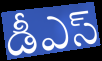
డీఎస్